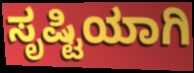
ಸೃಷ್ಟಿಯಾಗಿ